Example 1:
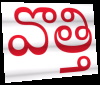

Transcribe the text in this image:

వొత్తి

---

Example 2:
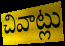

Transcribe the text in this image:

చివాట్లు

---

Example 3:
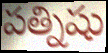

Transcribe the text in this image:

పత్నిషు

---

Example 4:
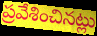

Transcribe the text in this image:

ప్రవేశించినట్లు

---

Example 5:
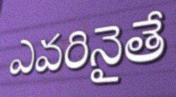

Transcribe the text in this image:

ఎవరినైతే